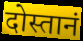
दोस्तानं